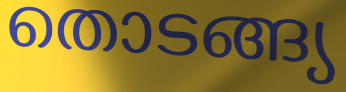
തൊടങ്ങ്യ